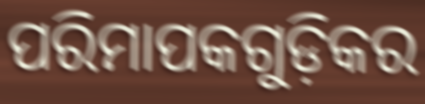
ପରିମାପକଗୁଡ଼ିକର